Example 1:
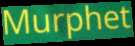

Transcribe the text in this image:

Murphet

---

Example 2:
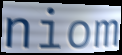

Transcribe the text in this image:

niom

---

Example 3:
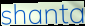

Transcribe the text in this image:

shanta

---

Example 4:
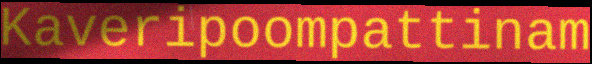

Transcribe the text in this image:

Kaveripoompattinam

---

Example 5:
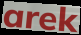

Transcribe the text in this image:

arek